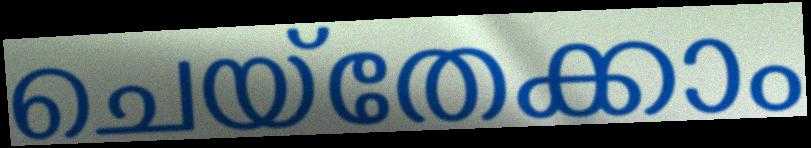
ചെയ്‌തേക്കാം